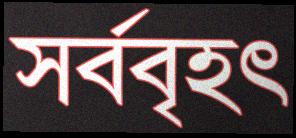
সৰ্ববৃহৎ